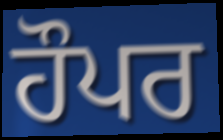
ਹੌਪਰ